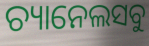
ଚ୍ୟାନେଲସବୁ